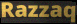
Razzaq